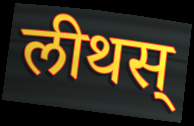
लीथस्